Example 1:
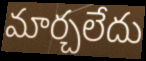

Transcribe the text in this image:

మార్చలేదు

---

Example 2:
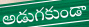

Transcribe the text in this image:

అడుగకుండా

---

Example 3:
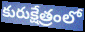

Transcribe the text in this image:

కురుక్షేత్రంలో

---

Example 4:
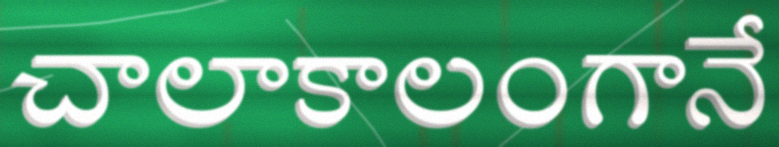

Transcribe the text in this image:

చాలాకాలంగానే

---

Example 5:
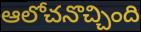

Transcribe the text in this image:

ఆలోచనొచ్చింది